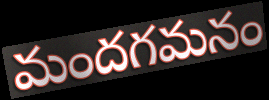
మందగమనం